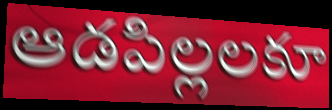
ఆడపిల్లలకూ